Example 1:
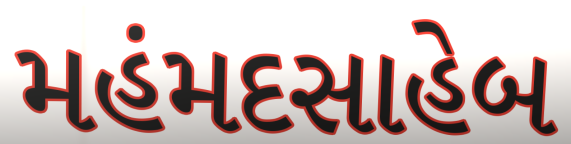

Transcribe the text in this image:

મહંમદસાહેબ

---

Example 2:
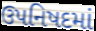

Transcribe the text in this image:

ઉપનિષદમાં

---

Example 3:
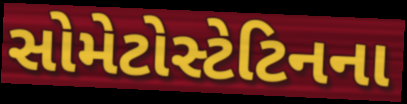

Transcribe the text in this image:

સોમેટોસ્ટેટિનના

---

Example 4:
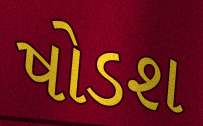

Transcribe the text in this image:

ષોડશ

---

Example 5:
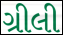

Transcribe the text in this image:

ગ્રીલી